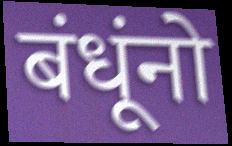
बंधूंनो